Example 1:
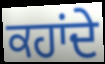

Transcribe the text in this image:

ਕਹਾਂਦੇ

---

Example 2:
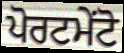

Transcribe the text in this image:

ਪੋਰਟਮੇਂਟੋ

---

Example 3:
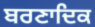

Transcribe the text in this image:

ਬਰਣਾਦਿਕ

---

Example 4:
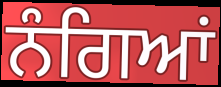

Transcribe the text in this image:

ਨੰਗਿਆਂ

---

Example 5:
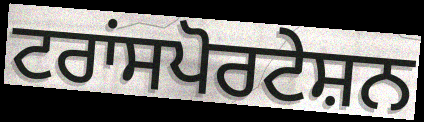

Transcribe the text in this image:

ਟਰਾਂਸਪੋਰਟੇਸ਼ਨ